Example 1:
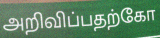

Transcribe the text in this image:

அறிவிப்பதற்கோ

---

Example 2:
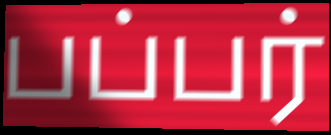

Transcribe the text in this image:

பப்பர்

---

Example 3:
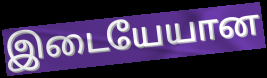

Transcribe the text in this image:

இடையேயான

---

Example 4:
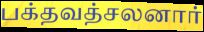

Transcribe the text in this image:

பக்தவத்சலனார்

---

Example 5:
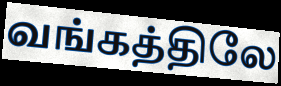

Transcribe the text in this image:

வங்கத்திலே